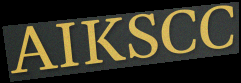
AIKSCC